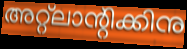
അറ്റ്ലാന്റിക്കിനു